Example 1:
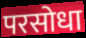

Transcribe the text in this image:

परसोधा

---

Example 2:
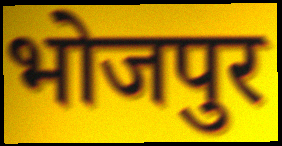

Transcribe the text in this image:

भोजपुर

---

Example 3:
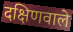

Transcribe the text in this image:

दक्षिणवाले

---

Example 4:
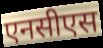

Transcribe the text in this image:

एनसीएस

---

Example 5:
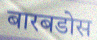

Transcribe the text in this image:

बारबडोस